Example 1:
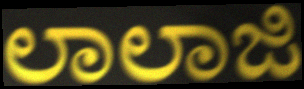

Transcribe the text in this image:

ಲಾಲಾಜಿ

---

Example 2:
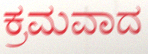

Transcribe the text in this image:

ಕ್ರಮವಾದ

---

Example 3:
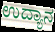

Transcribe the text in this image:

ಉದ್ಯಾನ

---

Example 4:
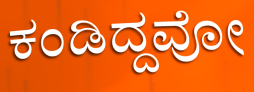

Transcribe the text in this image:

ಕಂಡಿದ್ದವೋ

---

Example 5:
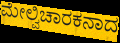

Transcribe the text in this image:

ಮೇಲ್ವಿಚಾರಕನಾದ